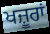
ਖਜ਼ੂਰਾਂ